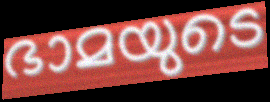
ഭാമയുടെ